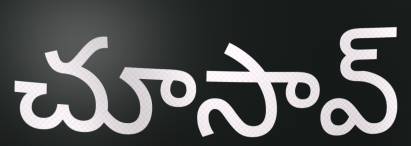
చూసావ్